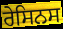
ਰੇਸਿਨਸ